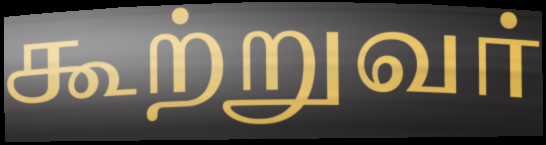
கூற்றுவர்